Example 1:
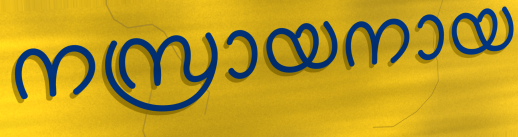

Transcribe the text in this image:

നസ്രായനായ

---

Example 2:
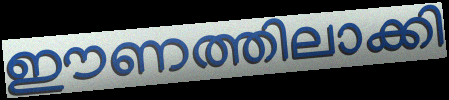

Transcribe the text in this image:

ഈണത്തിലാക്കി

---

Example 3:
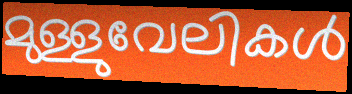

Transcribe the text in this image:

മുള്ളുവേലികൾ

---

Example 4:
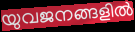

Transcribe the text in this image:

യുവജനങ്ങളിൽ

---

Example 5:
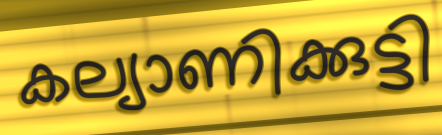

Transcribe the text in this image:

കല്യാണിക്കുട്ടി